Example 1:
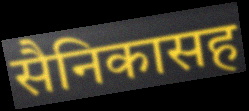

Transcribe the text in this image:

सैनिकासह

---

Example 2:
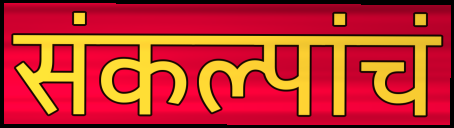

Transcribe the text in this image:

संकल्पांचं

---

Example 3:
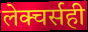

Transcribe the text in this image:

लेक्चर्सही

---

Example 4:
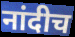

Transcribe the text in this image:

नांदीच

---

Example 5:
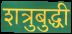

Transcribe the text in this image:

शत्रुबुद्धी